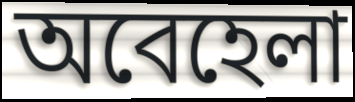
অবেহেলা